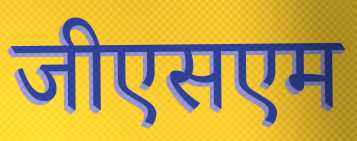
जीएसएम